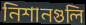
নিশানগুলি